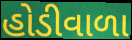
હોડીવાળા